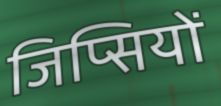
जिप्सियों